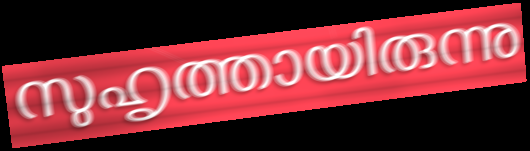
സുഹൃത്തായിരുന്നു